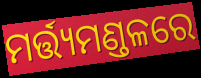
ମର୍ତ୍ତ୍ୟମଣ୍ଡଳରେ